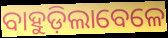
ବାହୁଡ଼ିଲାବେଳେ